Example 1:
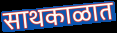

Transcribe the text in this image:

साथकाळात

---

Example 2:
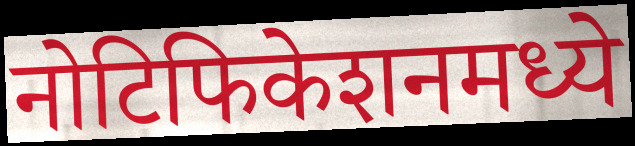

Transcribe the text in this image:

नोटिफिकेशनमध्ये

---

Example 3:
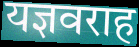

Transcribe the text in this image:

यज्ञवराह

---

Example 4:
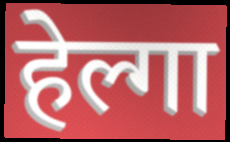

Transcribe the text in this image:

हेल्गा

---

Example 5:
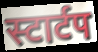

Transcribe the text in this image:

स्टार्टप